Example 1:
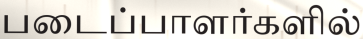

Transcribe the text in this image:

படைப்பாளர்களில்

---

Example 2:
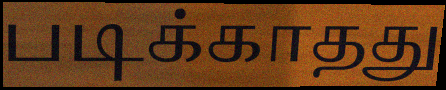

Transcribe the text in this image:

படிக்காதது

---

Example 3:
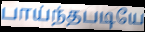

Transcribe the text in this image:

பாய்ந்தபடியே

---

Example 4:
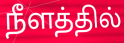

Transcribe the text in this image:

நீளத்தில்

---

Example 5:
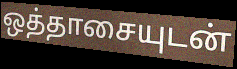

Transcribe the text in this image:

ஒத்தாசையுடன்